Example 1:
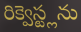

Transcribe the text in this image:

రిక్వెస్ట్లను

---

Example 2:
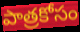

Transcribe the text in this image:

పాత్రకోసం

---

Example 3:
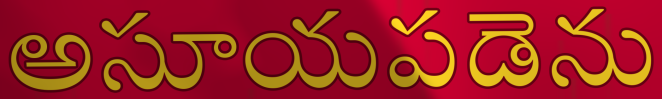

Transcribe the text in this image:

అసూయపడెను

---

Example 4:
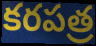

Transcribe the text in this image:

కరపత్ర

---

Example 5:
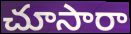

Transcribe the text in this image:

చూసారా